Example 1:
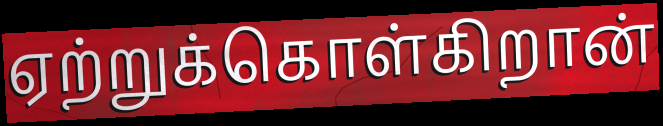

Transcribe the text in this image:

ஏற்றுக்கொள்கிறான்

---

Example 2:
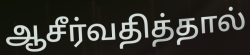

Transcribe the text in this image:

ஆசீர்வதித்தால்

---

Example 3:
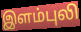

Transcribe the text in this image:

இளம்புலி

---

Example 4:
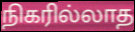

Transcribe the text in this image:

நிகரில்லாத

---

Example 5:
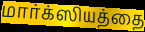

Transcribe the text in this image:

மார்க்ஸியத்தை